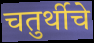
चतुर्थीचे